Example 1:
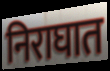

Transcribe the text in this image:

निराघात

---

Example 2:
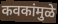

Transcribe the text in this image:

कवकांमुळे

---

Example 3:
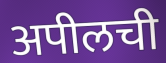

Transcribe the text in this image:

अपीलची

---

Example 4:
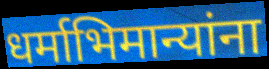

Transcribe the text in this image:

धर्माभिमान्यांना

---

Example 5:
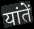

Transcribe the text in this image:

यांतें